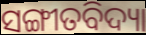
ସଙ୍ଗୀତବିଦ୍ୟା